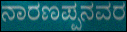
ನಾರಣಪ್ಪನವರ